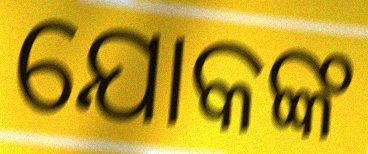
ଯୋକଙ୍କ